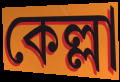
কেল্লা